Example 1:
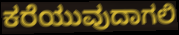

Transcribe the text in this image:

ಕರೆಯುವುದಾಗಲಿ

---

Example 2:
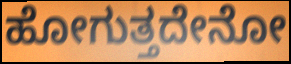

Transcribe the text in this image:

ಹೋಗುತ್ತದೇನೋ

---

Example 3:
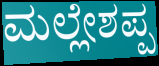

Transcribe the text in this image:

ಮಲ್ಲೇಶಪ್ಪ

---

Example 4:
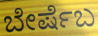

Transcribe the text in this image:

ಬೇರ್ಷೆಬ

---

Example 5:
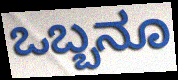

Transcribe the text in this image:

ಒಬ್ಬನೂ